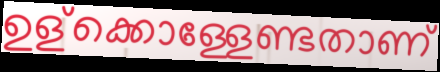
ഉള്ക്കൊള്ളേണ്ടതാണ്